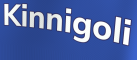
Kinnigoli